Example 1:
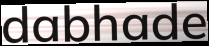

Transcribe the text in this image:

dabhade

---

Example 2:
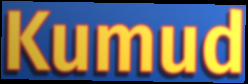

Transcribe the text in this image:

Kumud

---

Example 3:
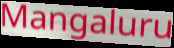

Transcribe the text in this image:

Mangaluru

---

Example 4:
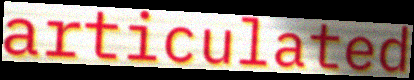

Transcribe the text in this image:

articulated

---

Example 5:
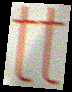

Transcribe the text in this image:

tt